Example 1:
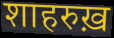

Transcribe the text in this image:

शाहरुख़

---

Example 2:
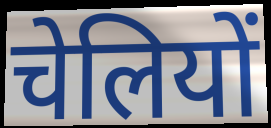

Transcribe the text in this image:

चेलियों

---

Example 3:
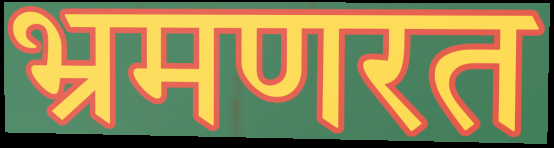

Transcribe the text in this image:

भ्रमणरत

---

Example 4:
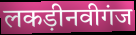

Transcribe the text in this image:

लकड़ीनवीगंज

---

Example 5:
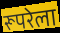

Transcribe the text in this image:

रूपरेला